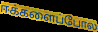
ஈக்களைப்போல